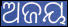
ଅଜୟ